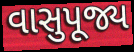
વાસુપૂજ્ય